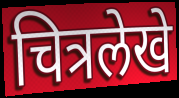
चित्रलेखे